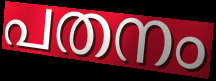
പതനം